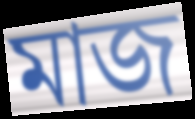
মাজ